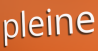
pleine